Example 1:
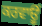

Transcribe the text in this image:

ਕਰਵਾਊਂ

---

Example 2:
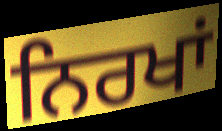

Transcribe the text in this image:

ਨਿਰਖਾਂ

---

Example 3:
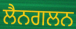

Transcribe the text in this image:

ਲੈਨਗਲਨ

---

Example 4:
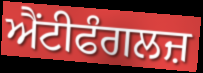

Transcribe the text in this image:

ਐਂਟੀਫੰਗਲਜ਼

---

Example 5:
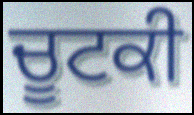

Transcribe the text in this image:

ਚੂਟਕੀ